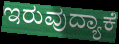
ಇರುವುದ್ಯಾಕೆ